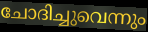
ചോദിച്ചുവെന്നും